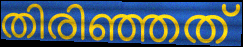
തിരിഞ്ഞത്